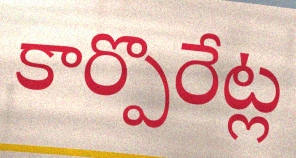
కార్పొరేట్ల